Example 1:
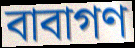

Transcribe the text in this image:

বাবাগণ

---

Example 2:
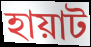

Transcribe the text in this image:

হায়াট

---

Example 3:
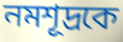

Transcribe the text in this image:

নমশূদ্রকে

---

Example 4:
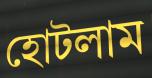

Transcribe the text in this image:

হোটলাম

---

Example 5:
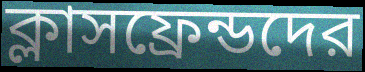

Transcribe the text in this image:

ক্লাসফ্রেন্ডদের